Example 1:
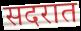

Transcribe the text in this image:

सदरात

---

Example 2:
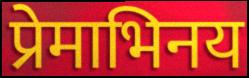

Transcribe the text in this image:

प्रेमाभिनय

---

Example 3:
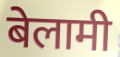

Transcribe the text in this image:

बेलामी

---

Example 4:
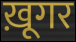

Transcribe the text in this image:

ख़ूगर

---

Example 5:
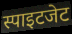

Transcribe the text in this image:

स्पाइटजेट